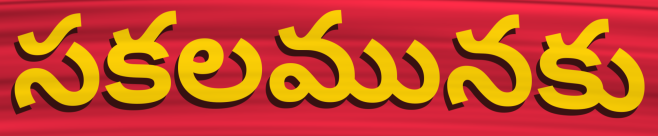
సకలమునకు